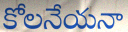
కోలనేయనా